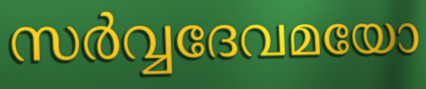
സർവ്വദേവമയോ